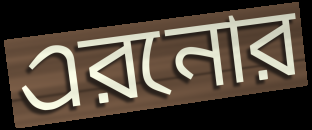
এরনোর